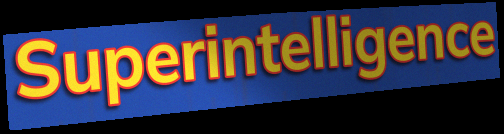
Superintelligence